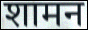
शामन